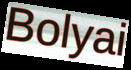
Bolyai